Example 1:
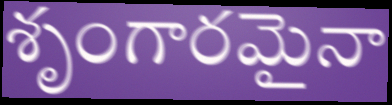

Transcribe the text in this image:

శృంగారమైనా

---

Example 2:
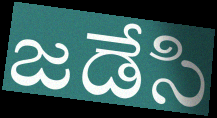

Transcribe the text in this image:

జడేసి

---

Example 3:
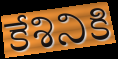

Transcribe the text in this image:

కేశినికి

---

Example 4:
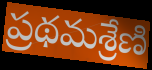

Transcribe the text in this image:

ప్రథమశ్రేణి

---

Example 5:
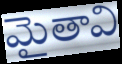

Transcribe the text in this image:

మైతావి